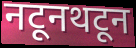
नटूनथटून